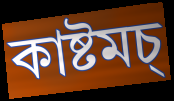
কাষ্টমচ্